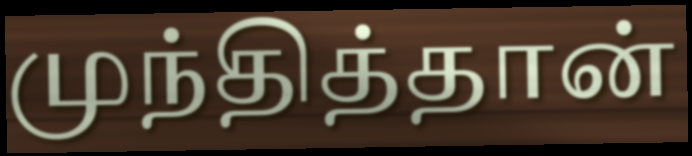
முந்தித்தான்